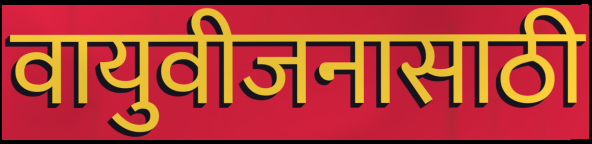
वायुवीजनासाठी